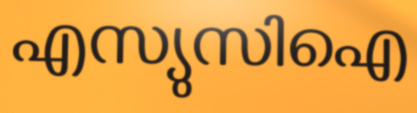
എസ്യുസിഐ